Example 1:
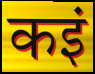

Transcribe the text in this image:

कइं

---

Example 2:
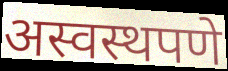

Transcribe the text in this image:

अस्वस्थपणे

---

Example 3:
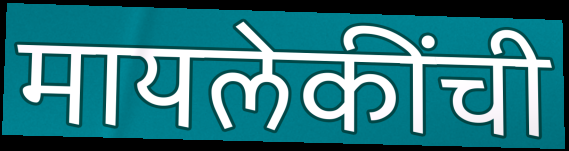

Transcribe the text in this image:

मायलेकींची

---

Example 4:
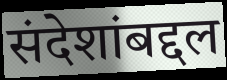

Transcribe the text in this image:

संदेशांबद्दल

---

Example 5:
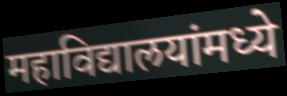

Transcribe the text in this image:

महाविद्यालयांमध्ये